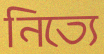
নিত্যে